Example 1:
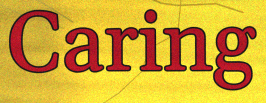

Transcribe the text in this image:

Caring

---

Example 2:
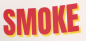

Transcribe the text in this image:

SMOKE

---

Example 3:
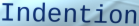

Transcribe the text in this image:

Indention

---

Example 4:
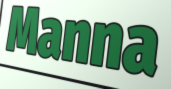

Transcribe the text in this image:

Manna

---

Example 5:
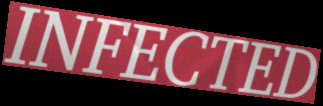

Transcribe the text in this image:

INFECTED